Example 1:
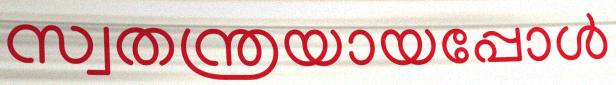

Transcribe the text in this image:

സ്വതന്ത്രയായപ്പോൾ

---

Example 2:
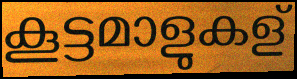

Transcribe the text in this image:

കൂട്ടമാളുകള്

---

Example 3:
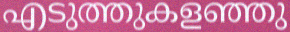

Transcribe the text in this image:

എടുത്തുകളഞ്ഞു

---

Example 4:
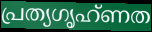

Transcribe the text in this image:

പ്രത്യഗൃഹ്ണത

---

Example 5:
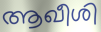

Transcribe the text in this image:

ആഖീശി